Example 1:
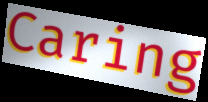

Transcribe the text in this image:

Caring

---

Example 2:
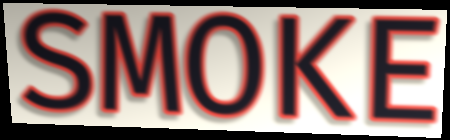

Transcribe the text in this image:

SMOKE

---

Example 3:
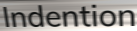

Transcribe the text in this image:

Indention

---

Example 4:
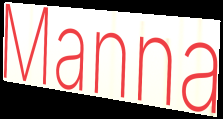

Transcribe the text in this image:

Manna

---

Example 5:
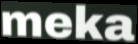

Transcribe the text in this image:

meka